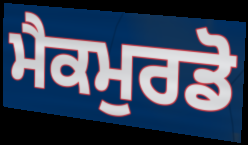
ਮੈਕਮੁਰਡੋ